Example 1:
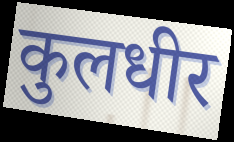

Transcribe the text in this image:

कुलधीर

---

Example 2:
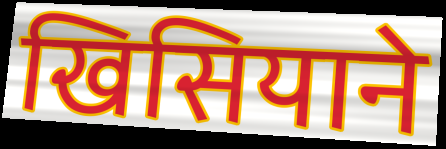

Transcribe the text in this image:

खिसियाने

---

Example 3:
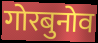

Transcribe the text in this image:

गोरबुनोव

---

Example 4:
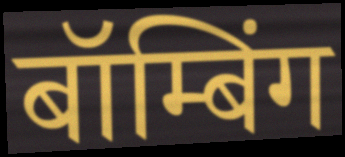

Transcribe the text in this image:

बॉम्बिंग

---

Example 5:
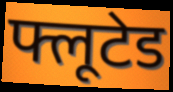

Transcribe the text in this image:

फ्लूटेड